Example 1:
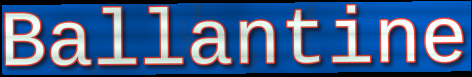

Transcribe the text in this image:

Ballantine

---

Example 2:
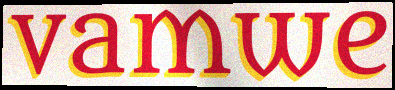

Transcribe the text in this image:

vamwe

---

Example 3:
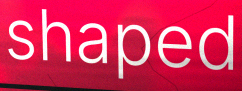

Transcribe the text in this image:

shaped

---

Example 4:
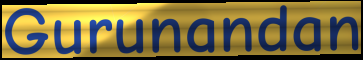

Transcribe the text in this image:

Gurunandan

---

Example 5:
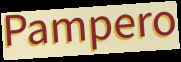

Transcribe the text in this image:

Pampero